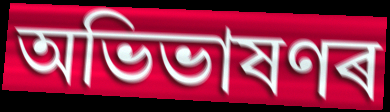
অভিভাষণৰ